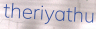
theriyathu